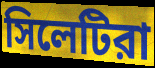
সিলেটিরা